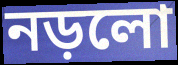
নড়লো